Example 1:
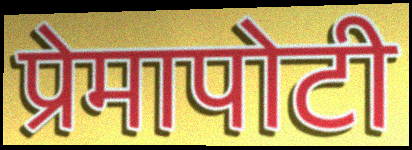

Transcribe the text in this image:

प्रेमापोटी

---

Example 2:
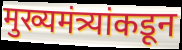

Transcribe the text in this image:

मुख्यमंत्र्यांकडून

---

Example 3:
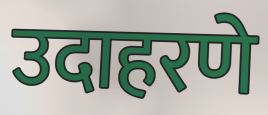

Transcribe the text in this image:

उदाहरणे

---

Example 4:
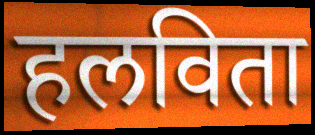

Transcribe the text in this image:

हलविता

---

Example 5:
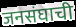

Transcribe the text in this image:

जनसंघाची